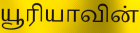
யூரியாவின்